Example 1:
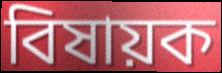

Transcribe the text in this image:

বিষায়ক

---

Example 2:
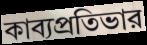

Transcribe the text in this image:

কাব্যপ্রতিভার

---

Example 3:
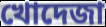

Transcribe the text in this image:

খোদেজা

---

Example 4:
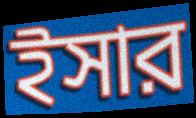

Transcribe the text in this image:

ইসার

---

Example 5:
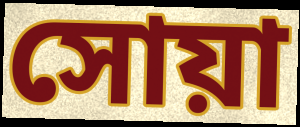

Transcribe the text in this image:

সোয়া